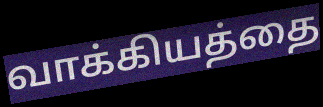
வாக்கியத்தை